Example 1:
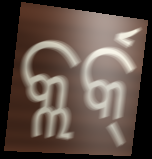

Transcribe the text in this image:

କ୍ଲର୍କ୍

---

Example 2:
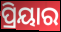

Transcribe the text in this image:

ପ୍ରିୟାର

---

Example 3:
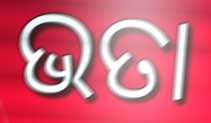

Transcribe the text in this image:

ଭତା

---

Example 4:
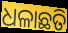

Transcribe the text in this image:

ଧଳାଛତି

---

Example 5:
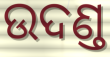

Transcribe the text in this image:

ଉଦଣ୍ଡ